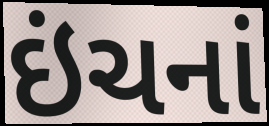
ઇંચનાં